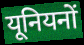
यूनियनों